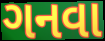
ગનવા